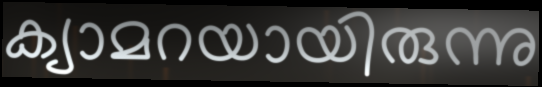
ക്യാമറയായിരുന്നു